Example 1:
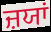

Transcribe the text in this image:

ਜ਼ਯਾਂ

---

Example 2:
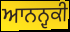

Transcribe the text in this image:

ਆਨਨ੍ਦਕੀ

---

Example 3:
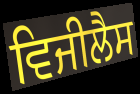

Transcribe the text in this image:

ਵਿਜੀਲੈਸ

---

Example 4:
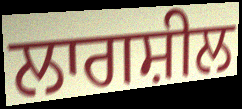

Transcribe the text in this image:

ਲਾਗਸ਼ੀਲ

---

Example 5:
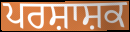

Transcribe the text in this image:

ਪਰਸ਼ਾਸ਼ਕ